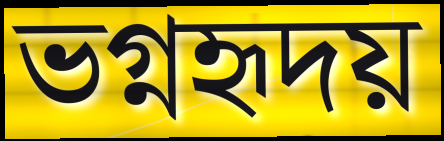
ভগ্নহৃদয়